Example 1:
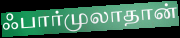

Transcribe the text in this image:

ஃபார்முலாதான்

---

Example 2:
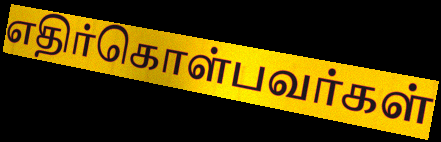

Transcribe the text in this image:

எதிர்கொள்பவர்கள்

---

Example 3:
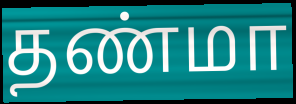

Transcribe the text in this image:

தண்மா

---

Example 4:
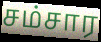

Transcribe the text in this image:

சம்சார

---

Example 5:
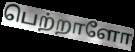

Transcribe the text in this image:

பெற்றாளோ